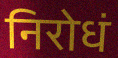
निरोधं